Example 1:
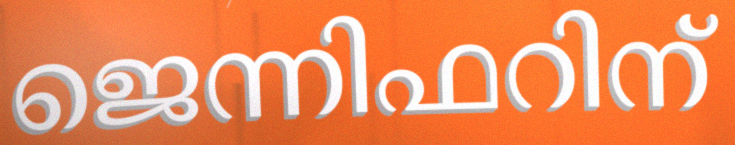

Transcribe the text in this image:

ജെന്നിഫറിന്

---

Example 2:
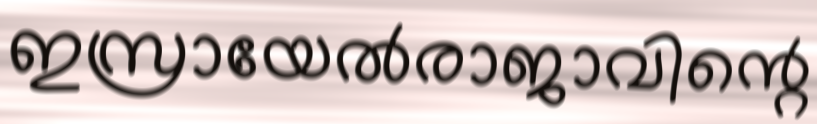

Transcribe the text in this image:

ഇസ്രായേൽരാജാവിന്റെ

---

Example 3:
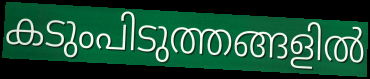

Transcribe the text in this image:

കടുംപിടുത്തങ്ങളിൽ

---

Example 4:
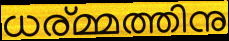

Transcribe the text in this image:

ധര്മ്മത്തിനു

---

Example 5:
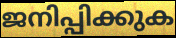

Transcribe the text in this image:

ജനിപ്പിക്കുക